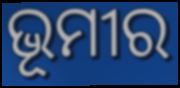
ଭୂମୀର